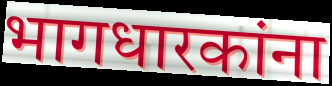
भागधारकांना